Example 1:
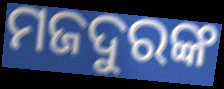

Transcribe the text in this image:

ମଜଦୁରଙ୍କ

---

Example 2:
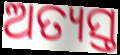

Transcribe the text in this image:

ଅତ୍ୟସ୍ତ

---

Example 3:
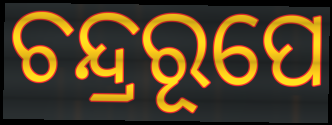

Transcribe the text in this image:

ଚନ୍ଦ୍ରରୂପେ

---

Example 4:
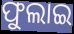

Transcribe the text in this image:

ଫୁଲାଇ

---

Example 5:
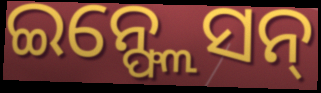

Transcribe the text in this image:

ଇନ୍ଫ୍ଲେସନ୍